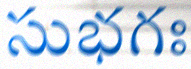
సుభగః